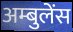
अम्बुलेंस